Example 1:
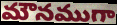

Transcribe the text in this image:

మౌనముగా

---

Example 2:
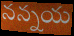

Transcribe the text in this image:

నన్నయ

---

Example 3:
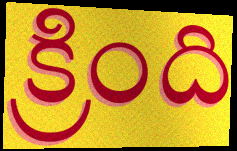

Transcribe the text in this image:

క్రింది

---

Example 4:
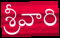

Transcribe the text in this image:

శ్రీవారి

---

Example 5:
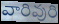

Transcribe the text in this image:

వారివురి